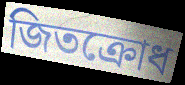
জিতক্রোধ